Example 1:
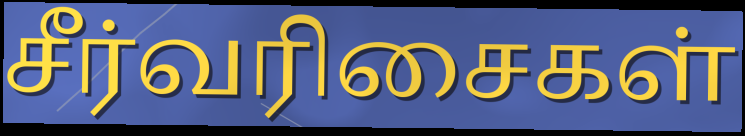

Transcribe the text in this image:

சீர்வரிசைகள்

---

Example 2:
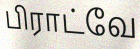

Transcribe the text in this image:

பிராட்வே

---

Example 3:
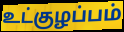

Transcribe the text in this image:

உட்குழப்பம்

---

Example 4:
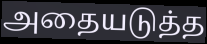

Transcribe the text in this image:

அதையடுத்த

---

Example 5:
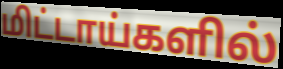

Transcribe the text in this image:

மிட்டாய்களில்